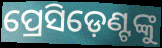
ପ୍ରେସିଡ଼େଣ୍ଟଙ୍କୁ